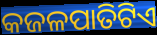
କଜଳପାତିଟିଏ